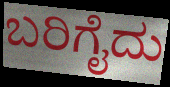
ಬರಿಗೈದು